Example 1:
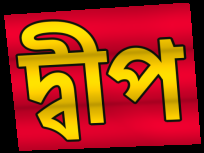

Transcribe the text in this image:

দ্বীপ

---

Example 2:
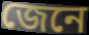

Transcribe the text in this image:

জেনে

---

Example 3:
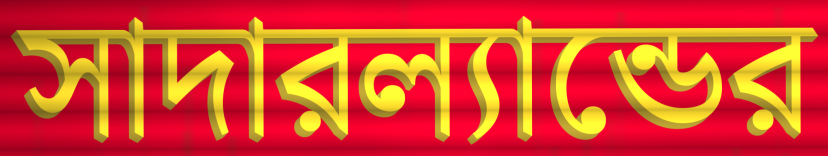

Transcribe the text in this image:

সাদারল্যান্ডের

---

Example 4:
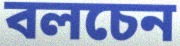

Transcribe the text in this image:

বলচেন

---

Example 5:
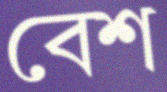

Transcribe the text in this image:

বেশ